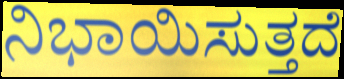
ನಿಭಾಯಿಸುತ್ತದೆ